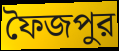
ফৈজপুর